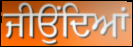
ਜੀਉਂਦਿਆਂ